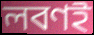
লবণই